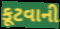
કૂટવાની